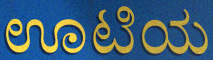
ಊಟಿಯ